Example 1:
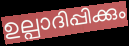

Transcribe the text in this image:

ഉല്പാദിപ്പിക്കും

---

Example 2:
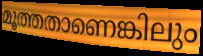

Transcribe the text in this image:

മൂത്തതാണെങ്കിലും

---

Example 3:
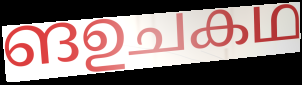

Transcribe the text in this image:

ങഉചകഥ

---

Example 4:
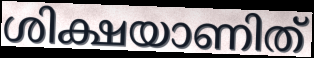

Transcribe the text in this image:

ശിക്ഷയാണിത്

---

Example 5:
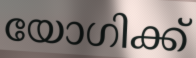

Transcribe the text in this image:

യോഗിക്ക്